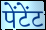
पेंटेंट